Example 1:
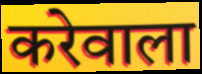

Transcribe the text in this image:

करेवाला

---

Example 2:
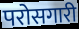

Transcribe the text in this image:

परोसगारी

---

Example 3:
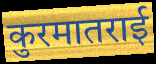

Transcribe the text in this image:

कुरमातराई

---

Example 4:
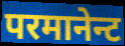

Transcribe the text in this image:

परमानेन्ट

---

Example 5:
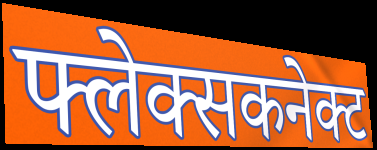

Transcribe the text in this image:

फ्लेक्सकनेक्ट